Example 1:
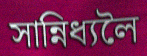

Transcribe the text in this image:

সান্নিধ্যলৈ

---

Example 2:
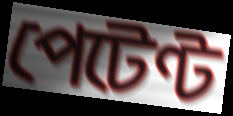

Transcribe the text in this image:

পেটেণ্ট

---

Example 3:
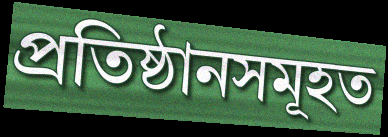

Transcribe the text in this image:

প্ৰতিষ্ঠানসমূহত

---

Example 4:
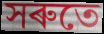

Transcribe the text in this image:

সৰুতে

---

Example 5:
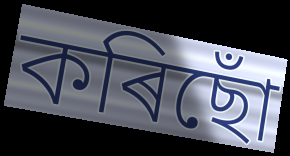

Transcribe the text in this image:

কৰিছোঁ